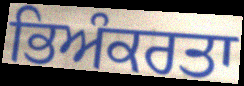
ਭਿਅੰਕਰਤਾ